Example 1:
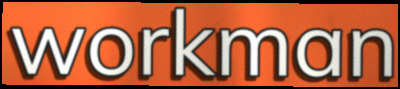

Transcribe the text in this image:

workman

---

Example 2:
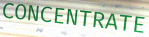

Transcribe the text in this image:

CONCENTRATE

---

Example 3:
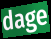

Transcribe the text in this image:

dage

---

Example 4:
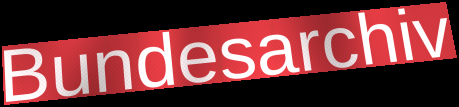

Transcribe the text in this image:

Bundesarchiv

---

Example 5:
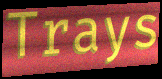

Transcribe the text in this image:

Trays